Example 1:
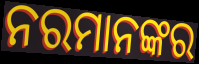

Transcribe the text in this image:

ନରମାନଙ୍କର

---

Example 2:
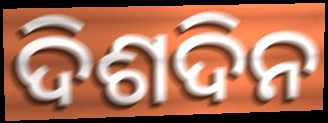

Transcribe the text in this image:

ଦିଶଦିନ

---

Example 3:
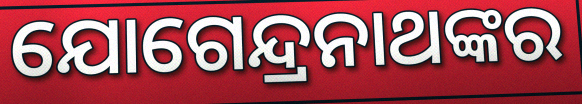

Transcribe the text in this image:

ଯୋଗେନ୍ଦ୍ରନାଥଙ୍କର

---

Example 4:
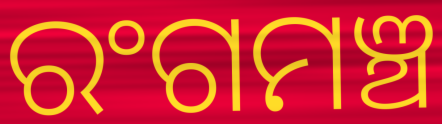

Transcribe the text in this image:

ରଂଗମଞ୍ଚ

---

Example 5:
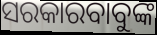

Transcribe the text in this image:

ସରକାରବାବୁଙ୍କ